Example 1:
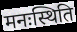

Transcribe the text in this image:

मनःस्थिति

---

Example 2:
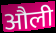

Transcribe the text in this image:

औली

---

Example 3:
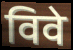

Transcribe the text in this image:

विवे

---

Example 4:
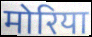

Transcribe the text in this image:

मोरिया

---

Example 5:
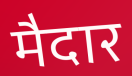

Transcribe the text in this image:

मैदार